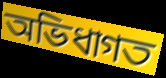
অভিধাগত